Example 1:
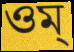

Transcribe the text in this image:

ওম্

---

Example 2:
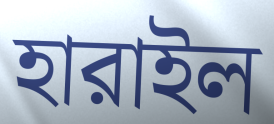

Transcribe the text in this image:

হারাইল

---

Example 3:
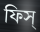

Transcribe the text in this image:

ফিস্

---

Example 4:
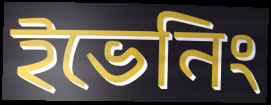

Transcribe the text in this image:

ইভেনিং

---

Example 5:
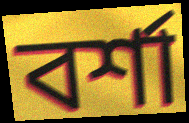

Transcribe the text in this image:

বর্শা